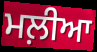
ਮਲ਼ੀਆ